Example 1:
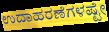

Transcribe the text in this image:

ಉದಾಹರಣೆಗಳಷ್ಟೇ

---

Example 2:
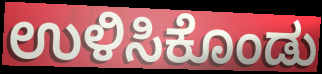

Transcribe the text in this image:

ಉಳಿಸಿಕೊಂಡು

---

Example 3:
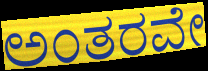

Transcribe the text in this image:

ಅಂತರವೇ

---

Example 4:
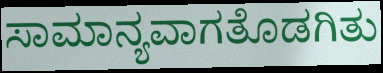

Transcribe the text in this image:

ಸಾಮಾನ್ಯವಾಗತೊಡಗಿತು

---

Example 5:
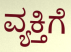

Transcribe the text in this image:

ವ್ಯಕ್ತಿಗೆ